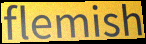
flemish